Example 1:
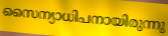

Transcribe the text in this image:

സൈന്യാധിപനായിരുന്നു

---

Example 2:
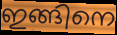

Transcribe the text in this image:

ഇങ്ങിനെ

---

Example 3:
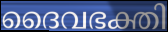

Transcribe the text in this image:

ദൈവഭക്തി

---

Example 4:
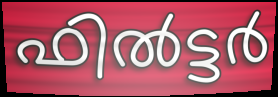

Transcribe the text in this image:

ഫിൽട്ടർ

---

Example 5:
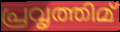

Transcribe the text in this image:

പ്രവൃത്തിമ്